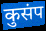
कुसंप